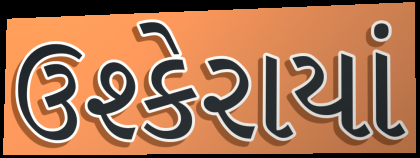
ઉશ્કેરાયાં